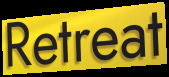
Retreat